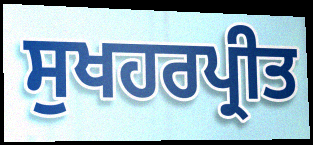
ਸੁਖਹਰਪ੍ਰੀਤ